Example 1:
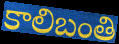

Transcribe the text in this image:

కాలిబంతి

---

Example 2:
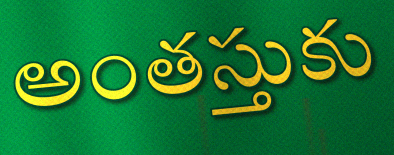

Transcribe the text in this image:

అంతస్తుకు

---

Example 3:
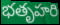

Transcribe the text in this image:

భతృహరి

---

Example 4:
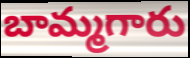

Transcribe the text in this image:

బామ్మగారు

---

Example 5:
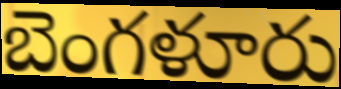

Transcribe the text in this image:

బెంగళూరు